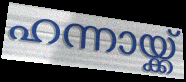
ഹന്നായ്ക്ക്